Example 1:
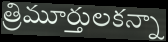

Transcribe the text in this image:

త్రిమూర్తులకన్నా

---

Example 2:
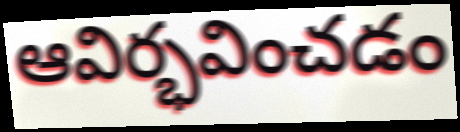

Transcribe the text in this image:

ఆవిర్భవించడం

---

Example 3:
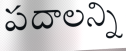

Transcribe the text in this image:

పదాలన్ని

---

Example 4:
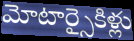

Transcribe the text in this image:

మోటార్సైకిళ్లు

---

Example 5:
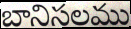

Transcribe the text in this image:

బానిసలము